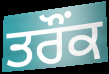
ਤਰੌਂਕ